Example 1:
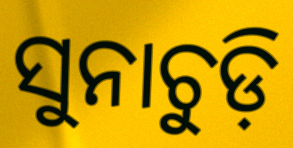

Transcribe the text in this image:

ସୁନାଚୁଡ଼ି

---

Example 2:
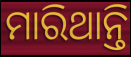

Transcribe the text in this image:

ମାରିଥାନ୍ତି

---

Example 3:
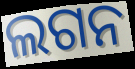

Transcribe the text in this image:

ଲଗନ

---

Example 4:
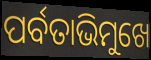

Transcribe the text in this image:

ପର୍ବତାଭିମୁଖେ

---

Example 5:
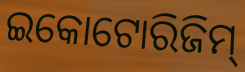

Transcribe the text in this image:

ଇକୋଟୋରିଜିମ୍